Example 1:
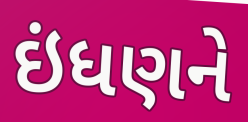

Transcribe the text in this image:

ઇંધણને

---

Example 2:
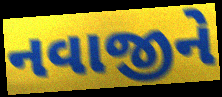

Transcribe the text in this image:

નવાજીને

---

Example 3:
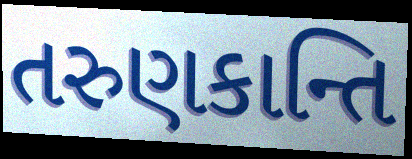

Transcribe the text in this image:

તરુણકાન્તિ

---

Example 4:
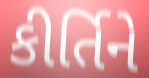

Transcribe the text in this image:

કીર્તિને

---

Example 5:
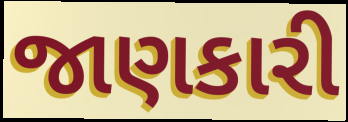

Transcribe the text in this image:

જાણકારી